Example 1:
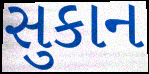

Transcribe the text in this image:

સુકાન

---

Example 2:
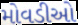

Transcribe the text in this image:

મોવડીઓ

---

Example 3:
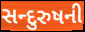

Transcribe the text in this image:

સન્દુરુષની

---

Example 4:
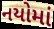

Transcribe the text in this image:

નયોમાં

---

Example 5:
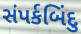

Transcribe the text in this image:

સંપર્કબિંદુ